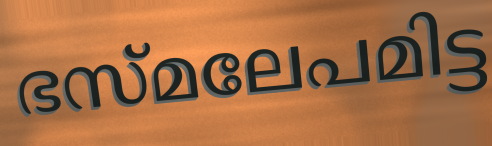
ഭസ്മലേപമിട്ട